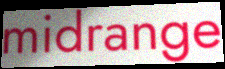
midrange